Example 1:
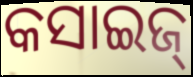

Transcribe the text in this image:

କସାଇଜ୍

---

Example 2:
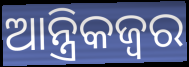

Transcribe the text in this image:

ଆନ୍ତ୍ରିକଜ୍ଵର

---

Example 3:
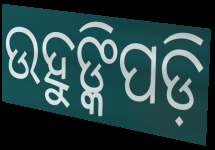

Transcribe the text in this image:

ଉହୁଙ୍କିପଡ଼ି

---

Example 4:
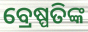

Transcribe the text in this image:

ବ୍ରେଷ୍ପତିଙ୍କ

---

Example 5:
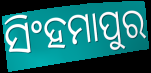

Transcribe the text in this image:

ସିଂହମାପୁର